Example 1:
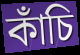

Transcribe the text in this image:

কাঁচি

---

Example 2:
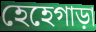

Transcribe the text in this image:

হেহেগাড়া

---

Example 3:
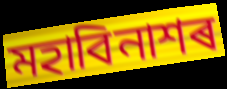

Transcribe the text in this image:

মহাবিনাশৰ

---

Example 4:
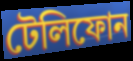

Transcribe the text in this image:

টেলিফোন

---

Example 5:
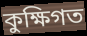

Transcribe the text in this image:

কুক্ষিগত